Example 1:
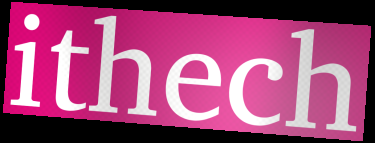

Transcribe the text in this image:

ithech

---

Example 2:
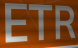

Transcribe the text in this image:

ETR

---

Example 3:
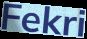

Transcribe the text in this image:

Fekri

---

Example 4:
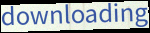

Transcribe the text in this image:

downloading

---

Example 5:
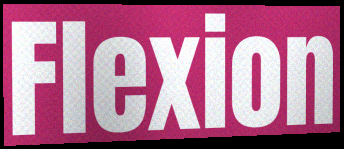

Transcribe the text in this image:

Flexion